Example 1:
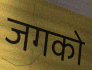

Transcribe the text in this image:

जगको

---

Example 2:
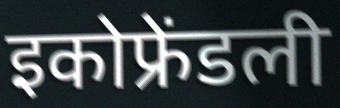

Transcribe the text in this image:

इकोफ्रेंडली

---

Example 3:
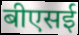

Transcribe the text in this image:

बीएसई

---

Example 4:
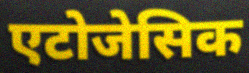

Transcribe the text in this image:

एटोजेसिक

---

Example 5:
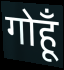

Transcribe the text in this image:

गोहूँ